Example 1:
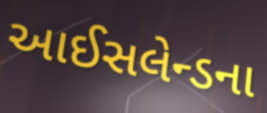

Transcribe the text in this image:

આઈસલેન્ડના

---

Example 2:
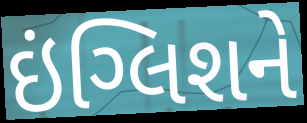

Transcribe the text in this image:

ઇંગ્લિશને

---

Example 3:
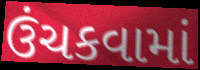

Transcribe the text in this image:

ઉંચકવામાં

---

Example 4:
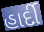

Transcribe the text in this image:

હાર્દી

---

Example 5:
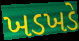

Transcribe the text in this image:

ખડખડે